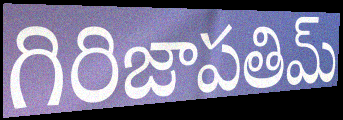
గిరిజాపతిమ్